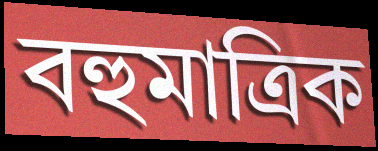
বহুমাত্ৰিক